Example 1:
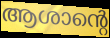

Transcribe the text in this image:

ആശാന്റെ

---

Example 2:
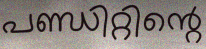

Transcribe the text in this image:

പണ്ഡിറ്റിന്റെ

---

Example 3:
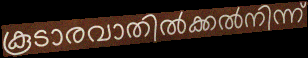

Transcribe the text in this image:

കൂടാരവാതിൽക്കൽനിന്ന്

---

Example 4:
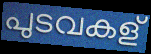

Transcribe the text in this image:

പുടവകള്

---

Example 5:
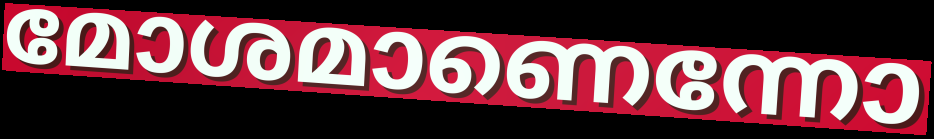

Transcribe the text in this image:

മോശമാണെന്നോ